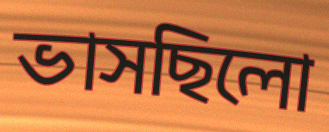
ভাসছিলো